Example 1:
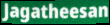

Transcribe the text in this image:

Jagatheesan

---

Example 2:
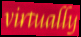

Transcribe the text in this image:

virtually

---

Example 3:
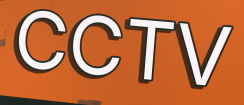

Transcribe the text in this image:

CCTV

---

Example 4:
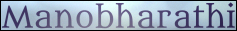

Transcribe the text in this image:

Manobharathi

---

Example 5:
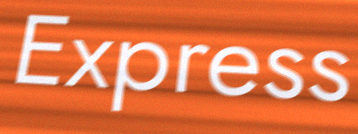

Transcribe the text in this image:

Express